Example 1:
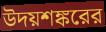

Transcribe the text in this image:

উদয়শঙ্করের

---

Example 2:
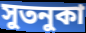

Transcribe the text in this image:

সুতনুকা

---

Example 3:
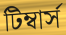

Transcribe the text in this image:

টিম্বার্স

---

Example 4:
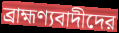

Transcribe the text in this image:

ব্রাহ্মণ্যবাদীদের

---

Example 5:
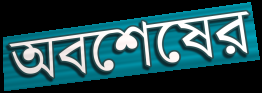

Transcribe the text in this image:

অবশেষের